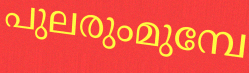
പുലരുംമുമ്പേ